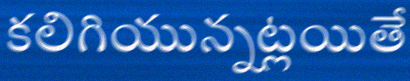
కలిగియున్నట్లయితే